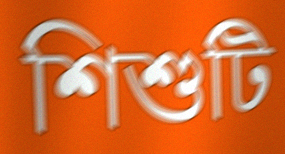
শিশুটি